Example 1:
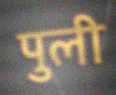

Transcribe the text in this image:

पुली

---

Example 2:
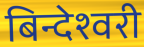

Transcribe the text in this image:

बिन्देश्वरी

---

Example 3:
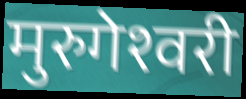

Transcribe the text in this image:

मुरुगेश्वरी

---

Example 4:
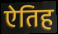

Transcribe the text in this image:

ऐतिह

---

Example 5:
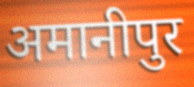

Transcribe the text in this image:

अमानीपुर